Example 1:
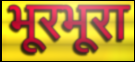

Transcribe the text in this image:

भूरभूरा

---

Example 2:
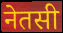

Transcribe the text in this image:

नेतसी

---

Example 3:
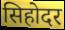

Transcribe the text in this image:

सिहोदर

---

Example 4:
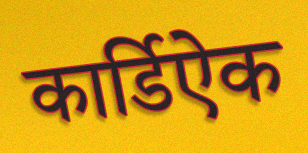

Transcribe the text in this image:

कार्डिऐक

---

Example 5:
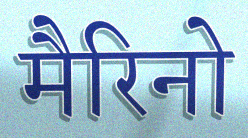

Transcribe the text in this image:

मैरिनो